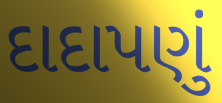
દાદાપણું